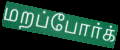
மறப்போர்க்